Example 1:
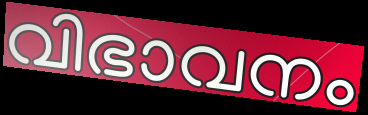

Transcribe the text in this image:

വിഭാവനം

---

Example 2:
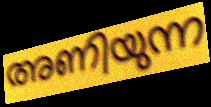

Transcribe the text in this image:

അണിയുന്ന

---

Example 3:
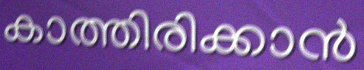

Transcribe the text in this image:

കാത്തിരിക്കാൻ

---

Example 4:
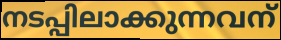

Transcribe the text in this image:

നടപ്പിലാക്കുന്നവന്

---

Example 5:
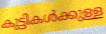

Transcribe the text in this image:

കുട്ടികൾക്കുള്ള